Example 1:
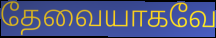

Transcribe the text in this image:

தேவையாகவே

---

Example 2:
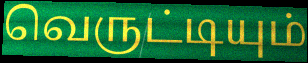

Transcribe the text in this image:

வெருட்டியும்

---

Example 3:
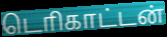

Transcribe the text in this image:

டெரிகாட்டன்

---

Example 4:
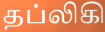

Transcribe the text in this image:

தப்லிகி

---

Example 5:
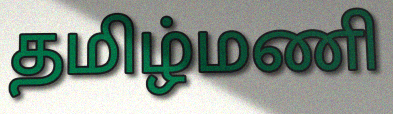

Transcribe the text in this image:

தமிழ்மணி